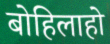
बोहिलाहो